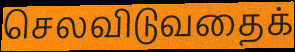
செலவிடுவதைக்